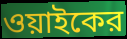
ওয়াইকের